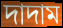
দাদাম